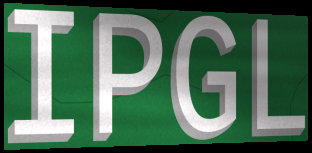
IPGL